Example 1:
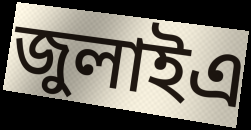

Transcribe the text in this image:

জুলাইএ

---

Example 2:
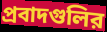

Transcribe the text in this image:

প্রবাদগুলির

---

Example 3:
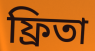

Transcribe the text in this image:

ফ্রিতা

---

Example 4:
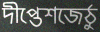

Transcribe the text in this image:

দীপ্তেশজেঠু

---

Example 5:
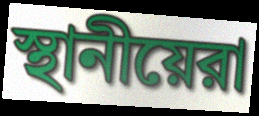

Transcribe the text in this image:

স্থানীয়েরা